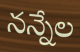
నన్నేల